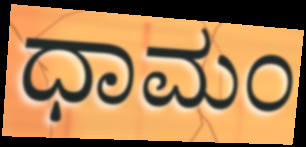
ಧಾಮಂ